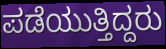
ಪಡೆಯುತ್ತಿದ್ದರು